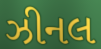
ઝીનલ